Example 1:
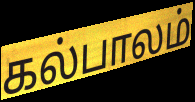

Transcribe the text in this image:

கல்பாலம்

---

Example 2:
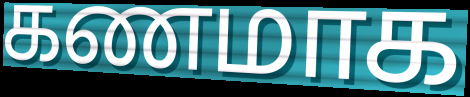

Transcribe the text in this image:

கணமாக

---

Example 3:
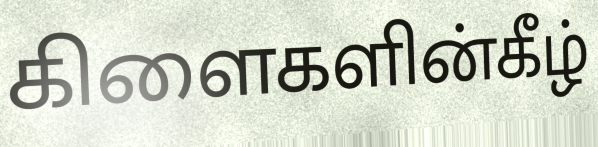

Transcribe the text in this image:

கிளைகளின்கீழ்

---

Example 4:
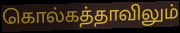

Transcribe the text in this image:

கொல்கத்தாவிலும்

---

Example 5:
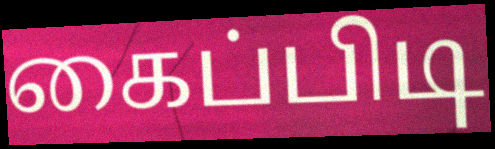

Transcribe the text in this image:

கைப்பிடி